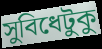
সুবিধেটুকু